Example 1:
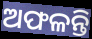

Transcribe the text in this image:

ଅଫଳନ୍ତି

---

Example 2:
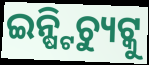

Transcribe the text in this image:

ଇନ୍ଷ୍ଟିଚ୍ୟୁଟ୍କୁ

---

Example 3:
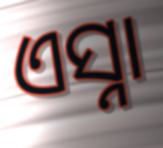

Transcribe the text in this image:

ଏସ୍ନା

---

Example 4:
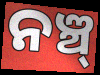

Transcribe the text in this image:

ନଞ୍ଚ୍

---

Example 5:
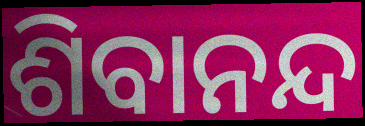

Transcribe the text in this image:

ଶିବାନନ୍ଦ